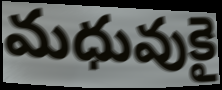
మధువుకై